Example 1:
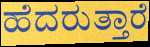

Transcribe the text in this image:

ಹೆದರುತ್ತಾರೆ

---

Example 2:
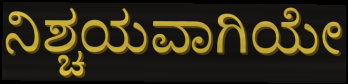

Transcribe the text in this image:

ನಿಶ್ಚಯವಾಗಿಯೇ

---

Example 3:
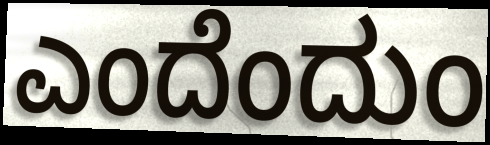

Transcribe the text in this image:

ಎಂದೆಂದುಂ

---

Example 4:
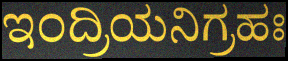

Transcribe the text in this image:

ಇಂದ್ರಿಯನಿಗ್ರಹಃ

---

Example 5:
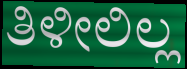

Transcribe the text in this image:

ತಿಳೀಲಿಲ್ಲ